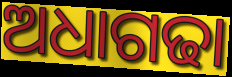
ଅଧାଗଢା